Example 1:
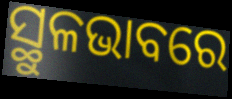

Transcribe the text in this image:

ସ୍ଥୁଳଭାବରେ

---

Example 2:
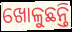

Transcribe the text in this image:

ଖୋଳୁଛନ୍ତି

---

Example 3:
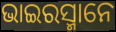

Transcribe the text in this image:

ଭାଇରସ୍ମାନେ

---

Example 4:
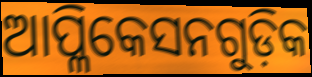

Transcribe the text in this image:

ଆପ୍ଳିକେସନଗୁଡ଼ିକ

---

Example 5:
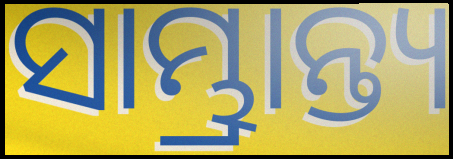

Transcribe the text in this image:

ସାମ୍ଭ୍ରାନ୍ତ୍ୟ